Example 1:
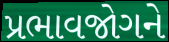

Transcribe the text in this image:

પ્રભાવજોગને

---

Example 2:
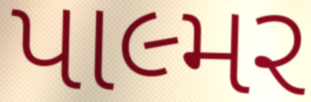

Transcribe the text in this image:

પાલ્મર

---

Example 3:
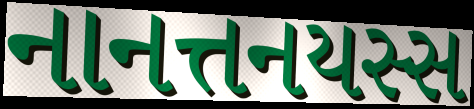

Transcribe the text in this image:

નાનત્તનયસ્સ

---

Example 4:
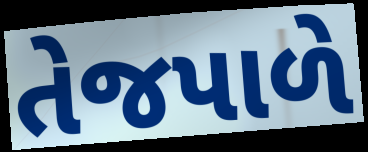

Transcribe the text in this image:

તેજપાળે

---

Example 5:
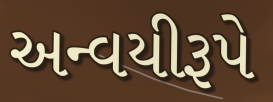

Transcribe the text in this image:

અન્વયીરૂપે